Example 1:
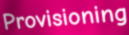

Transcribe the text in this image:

Provisioning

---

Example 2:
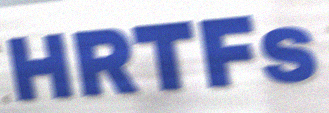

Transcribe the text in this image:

HRTFs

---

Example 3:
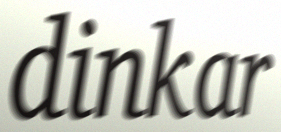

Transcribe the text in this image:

dinkar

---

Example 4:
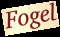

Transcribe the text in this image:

Fogel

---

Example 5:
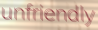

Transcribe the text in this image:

unfriendly